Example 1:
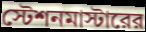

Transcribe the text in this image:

স্টেশনমাস্টারের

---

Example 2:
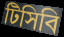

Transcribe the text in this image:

টিসিবি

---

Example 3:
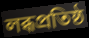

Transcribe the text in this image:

লব্ধপ্রতিষ্ঠ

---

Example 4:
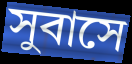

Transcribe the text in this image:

সুবাসে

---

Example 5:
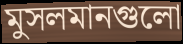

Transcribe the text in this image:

মুসলমানগুলো